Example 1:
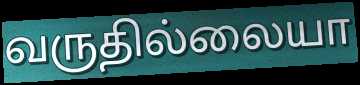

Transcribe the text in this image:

வருதில்லையா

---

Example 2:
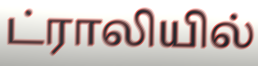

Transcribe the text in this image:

ட்ராலியில்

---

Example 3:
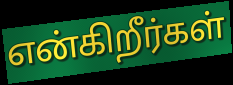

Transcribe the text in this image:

என்கிறீர்கள்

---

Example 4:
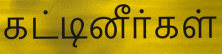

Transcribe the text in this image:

கட்டினீர்கள்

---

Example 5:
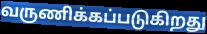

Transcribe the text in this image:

வருணிக்கப்படுகிறது